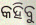
କହିବୁ